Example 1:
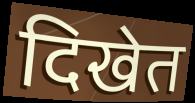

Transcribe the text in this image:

दिखेत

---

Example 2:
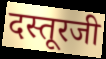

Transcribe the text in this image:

दस्तूरजी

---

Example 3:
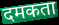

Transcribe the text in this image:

दमकता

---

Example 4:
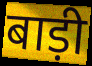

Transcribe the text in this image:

बाड़ी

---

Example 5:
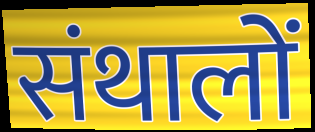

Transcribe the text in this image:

संथालों